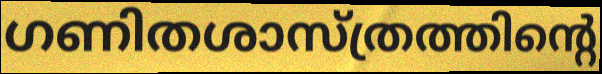
ഗണിതശാസ്ത്രത്തിന്റെ